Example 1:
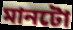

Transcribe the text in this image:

মানটো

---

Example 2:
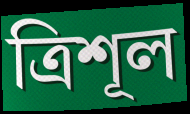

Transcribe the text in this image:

ত্ৰিশূল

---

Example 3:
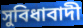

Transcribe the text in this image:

সুবিধাবাদী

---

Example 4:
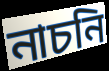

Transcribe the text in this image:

নাচনি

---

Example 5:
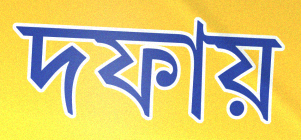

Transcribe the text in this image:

দফায়